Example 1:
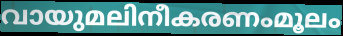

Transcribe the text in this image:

വായുമലിനീകരണംമൂലം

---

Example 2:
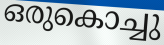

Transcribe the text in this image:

ഒരുകൊച്ചു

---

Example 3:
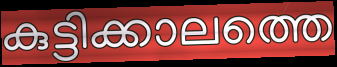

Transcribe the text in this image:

കുട്ടിക്കാലത്തെ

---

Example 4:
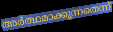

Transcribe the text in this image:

അർത്ഥമാക്കുന്നതെന്ന്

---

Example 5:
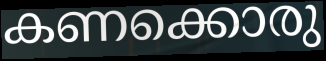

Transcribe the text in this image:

കണക്കൊരു